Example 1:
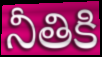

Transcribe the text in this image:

నీతికి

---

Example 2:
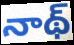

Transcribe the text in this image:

నాథ్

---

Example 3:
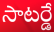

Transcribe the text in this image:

సాటర్డే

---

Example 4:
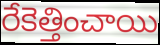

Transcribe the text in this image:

రేకెత్తించాయి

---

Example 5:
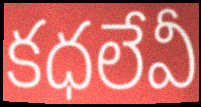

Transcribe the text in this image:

కధలేవీ